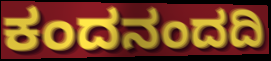
ಕಂದನಂದದಿ